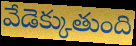
వేడెక్కుతుంది